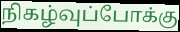
நிகழ்வுப்போக்கு